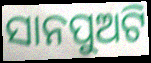
ସାନପୁଅଟି